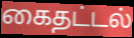
கைதட்டல்